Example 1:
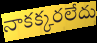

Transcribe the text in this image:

నాకక్కరలేదు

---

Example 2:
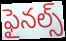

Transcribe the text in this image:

ఫైనల్స్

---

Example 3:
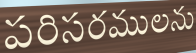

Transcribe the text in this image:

పరిసరములను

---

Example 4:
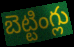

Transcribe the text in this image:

బెట్టింగ్లు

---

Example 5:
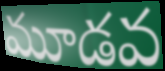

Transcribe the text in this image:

మూడవ